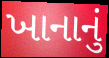
ખાનાનું